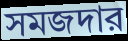
সমজদার